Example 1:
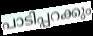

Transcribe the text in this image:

പാടിപ്പറക്കും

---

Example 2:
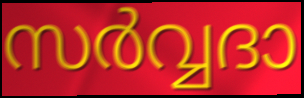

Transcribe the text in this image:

സർവ്വദാ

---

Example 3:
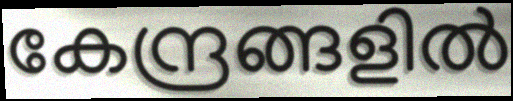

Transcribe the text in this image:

കേന്ദ്രങ്ങളിൽ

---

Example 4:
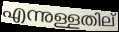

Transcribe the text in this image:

എന്നുള്ളതില്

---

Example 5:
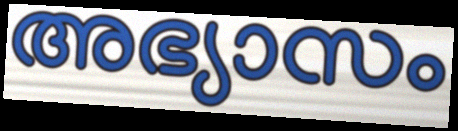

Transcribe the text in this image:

അഭ്യാസം